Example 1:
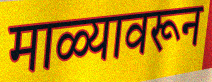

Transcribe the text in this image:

माळ्यावरून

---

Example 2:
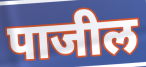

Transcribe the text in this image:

पाजील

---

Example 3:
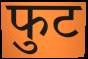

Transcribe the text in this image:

फुट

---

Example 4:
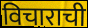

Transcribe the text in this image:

विचाराची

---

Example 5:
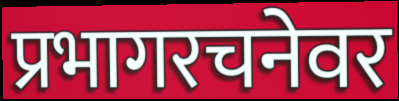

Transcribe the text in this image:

प्रभागरचनेवर